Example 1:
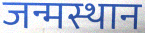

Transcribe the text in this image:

जन्मस्थान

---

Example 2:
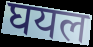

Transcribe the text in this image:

घयल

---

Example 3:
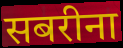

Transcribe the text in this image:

सबरीना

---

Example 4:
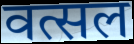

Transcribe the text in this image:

वत्सल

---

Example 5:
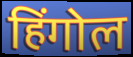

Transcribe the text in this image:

हिंगोल